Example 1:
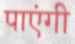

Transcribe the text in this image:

पाएंगी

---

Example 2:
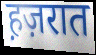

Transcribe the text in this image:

ह़ज़रात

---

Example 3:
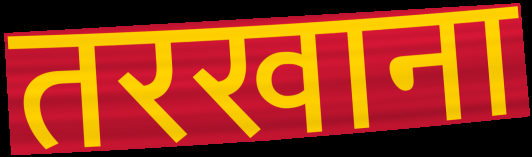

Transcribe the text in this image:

तरखाना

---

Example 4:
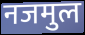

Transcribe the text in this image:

नजमुल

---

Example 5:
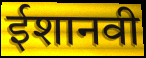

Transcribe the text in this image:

ईशानवी